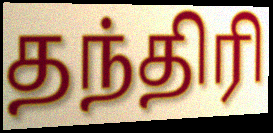
தந்திரி